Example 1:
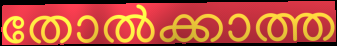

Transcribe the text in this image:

തോൽക്കാത്ത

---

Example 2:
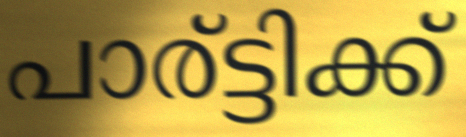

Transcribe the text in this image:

പാര്ട്ടിക്ക്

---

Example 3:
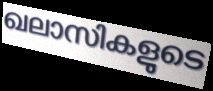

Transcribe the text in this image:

ഖലാസികളുടെ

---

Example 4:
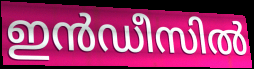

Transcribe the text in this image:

ഇൻഡീസിൽ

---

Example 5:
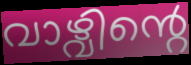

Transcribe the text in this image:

വാഴ്വിന്റെ